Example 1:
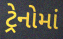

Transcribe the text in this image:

ટ્રેનોમાં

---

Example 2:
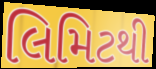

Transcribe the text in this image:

લિમિટથી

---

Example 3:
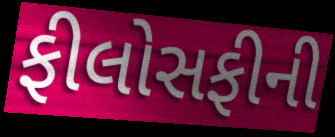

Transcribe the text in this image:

ફીલોસફીની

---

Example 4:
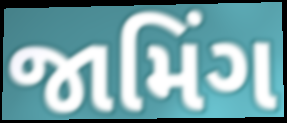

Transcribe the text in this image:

જામિંગ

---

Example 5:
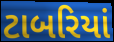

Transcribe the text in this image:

ટાબરિયાં